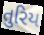
તુરિય